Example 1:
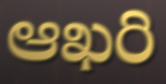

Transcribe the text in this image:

ఆఖరి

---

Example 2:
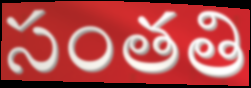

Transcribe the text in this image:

సంతతి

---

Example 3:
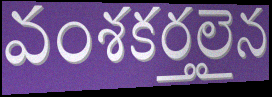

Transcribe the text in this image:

వంశకర్తలైన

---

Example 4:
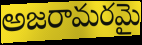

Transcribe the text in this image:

అజరామరమై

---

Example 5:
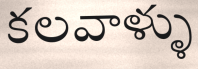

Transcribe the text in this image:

కలవాళ్ళు